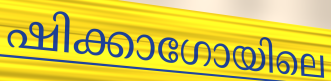
ഷിക്കാഗോയിലെ